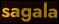
sagala